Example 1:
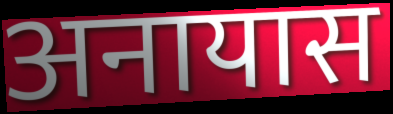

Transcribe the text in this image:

अनायास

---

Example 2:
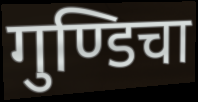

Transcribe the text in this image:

गुण्डिचा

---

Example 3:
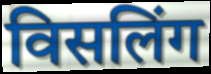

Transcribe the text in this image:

विसलिंग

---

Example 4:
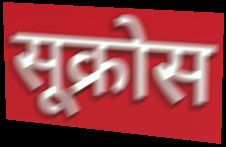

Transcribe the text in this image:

सूक्रोस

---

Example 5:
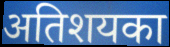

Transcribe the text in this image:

अतिशयका